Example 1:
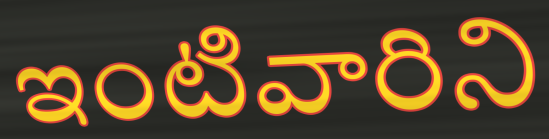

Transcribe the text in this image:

ఇంటివారిని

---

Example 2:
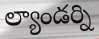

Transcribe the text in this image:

ల్యాండర్ని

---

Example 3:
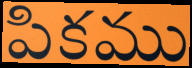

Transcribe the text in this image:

పికము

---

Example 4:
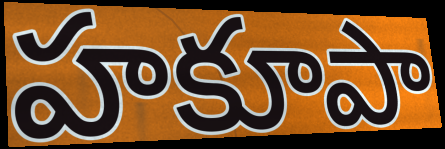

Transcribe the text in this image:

హకూపా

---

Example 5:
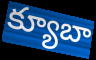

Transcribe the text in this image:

క్యూబా